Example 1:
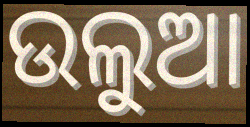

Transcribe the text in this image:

ଉଲୁଆ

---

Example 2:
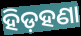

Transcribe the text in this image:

ହିଡ଼ହଣା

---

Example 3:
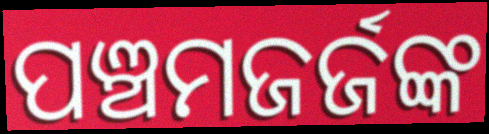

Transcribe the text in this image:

ପଞ୍ଚମଜର୍ଜଙ୍କ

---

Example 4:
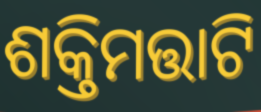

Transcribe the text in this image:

ଶକ୍ତିମତ୍ତାଟି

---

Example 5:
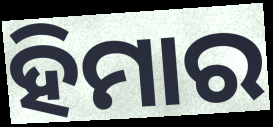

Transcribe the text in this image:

ହିମାର